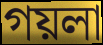
গয়লা